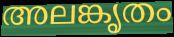
അലങ്കൃതം